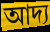
আদ্য